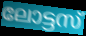
ലോട്ടസ്